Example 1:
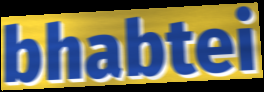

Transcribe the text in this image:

bhabtei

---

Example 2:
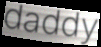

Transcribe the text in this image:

daddy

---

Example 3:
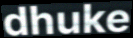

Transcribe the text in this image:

dhuke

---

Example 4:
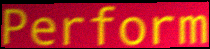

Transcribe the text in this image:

Perform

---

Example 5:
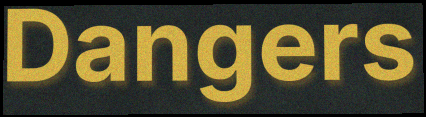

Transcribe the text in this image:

Dangers